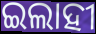
ଇଲାହୀ